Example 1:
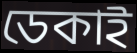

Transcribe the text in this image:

ডেকাই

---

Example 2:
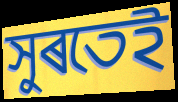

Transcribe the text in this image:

সুৰতেই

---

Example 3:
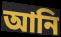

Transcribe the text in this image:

আনি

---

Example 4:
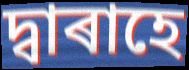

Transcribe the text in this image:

দ্বাৰাহে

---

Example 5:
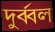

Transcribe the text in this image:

দুৰ্ব্বল